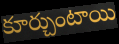
కూర్చుంటాయి